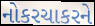
નોકરચાકરને